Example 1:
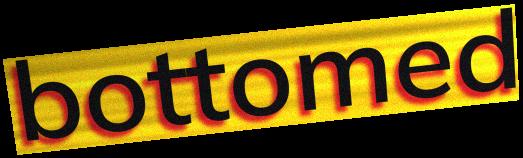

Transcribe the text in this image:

bottomed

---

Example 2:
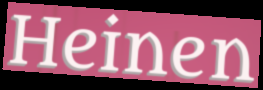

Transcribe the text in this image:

Heinen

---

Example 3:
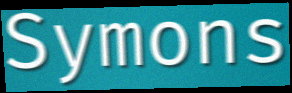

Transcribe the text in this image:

Symons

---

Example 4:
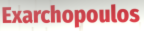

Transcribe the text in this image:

Exarchopoulos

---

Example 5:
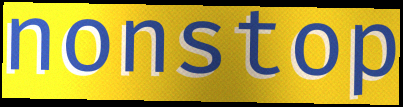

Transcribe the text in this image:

nonstop